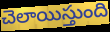
చెలాయిస్తుంది